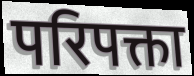
परिपक्ता